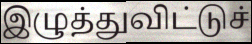
இழுத்துவிட்டுச்